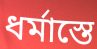
ধর্মাস্তে